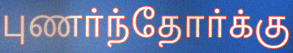
புணர்ந்தோர்க்கு